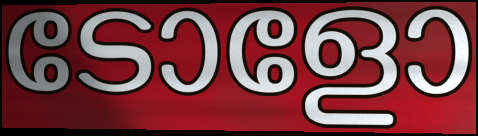
ടോളോ